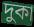
দুকা